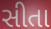
સીતા